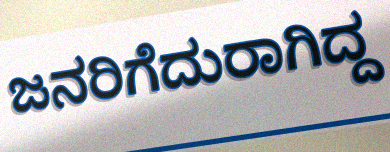
ಜನರಿಗೆದುರಾಗಿದ್ದ